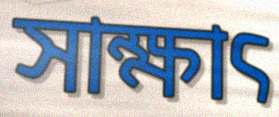
সাক্ষাৎ